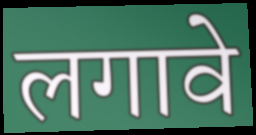
लगावे